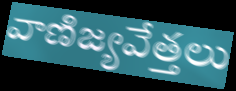
వాణిజ్యవేత్తలు